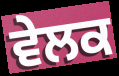
ਵੇਲਕ